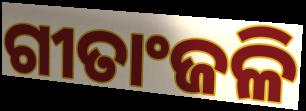
ଗୀତାଂଜଳି